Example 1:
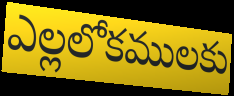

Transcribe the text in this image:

ఎల్లలోకములకు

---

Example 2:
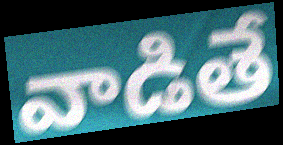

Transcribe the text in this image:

వాడితే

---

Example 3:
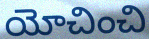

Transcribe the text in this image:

యోచించి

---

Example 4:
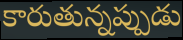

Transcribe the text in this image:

కారుతున్నప్పుడు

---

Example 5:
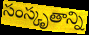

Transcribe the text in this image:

సంస్కృతాన్ని